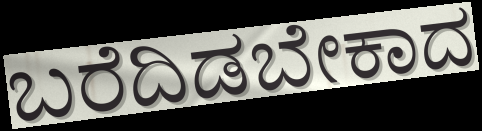
ಬರೆದಿಡಬೇಕಾದ